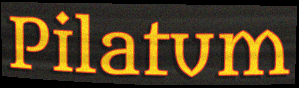
Pilatum